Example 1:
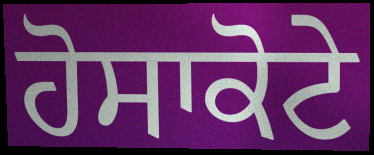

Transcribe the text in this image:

ਹੋਸਾਕੋਟੇ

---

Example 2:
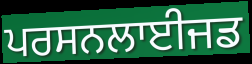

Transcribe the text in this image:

ਪਰਸਨਲਾਈਜਡ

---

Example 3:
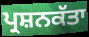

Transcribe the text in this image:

ਪ੍ਰਸ਼ਨਕੱਤਾ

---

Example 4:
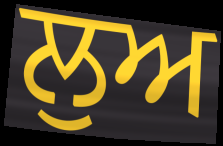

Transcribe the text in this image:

ਲੁਅ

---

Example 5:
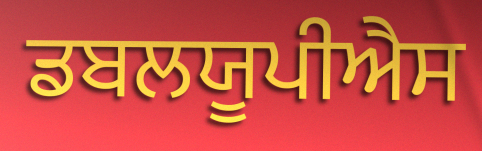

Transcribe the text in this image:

ਡਬਲਯੂਪੀਐਸ